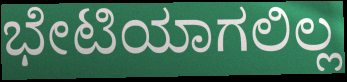
ಭೇಟಿಯಾಗಲಿಲ್ಲ